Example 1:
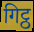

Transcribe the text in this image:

गिट्ठ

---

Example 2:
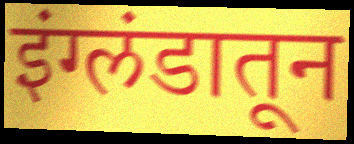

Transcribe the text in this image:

इंग्लंडातून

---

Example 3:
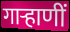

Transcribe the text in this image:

गाऱ्हाणीं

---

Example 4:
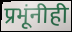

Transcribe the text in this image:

प्रभूंनीही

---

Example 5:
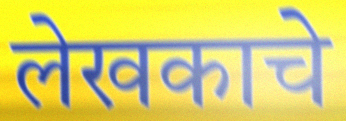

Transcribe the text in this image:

लेखकाचे